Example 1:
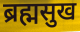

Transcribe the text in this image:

ब्रह्मसुख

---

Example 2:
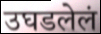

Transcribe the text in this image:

उघडलेलं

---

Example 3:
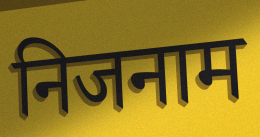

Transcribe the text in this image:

निजनाम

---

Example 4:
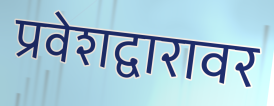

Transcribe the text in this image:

प्रवेशद्वारावर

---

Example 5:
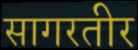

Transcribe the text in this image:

सागरतीर